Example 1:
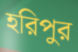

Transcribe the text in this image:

হরিপুর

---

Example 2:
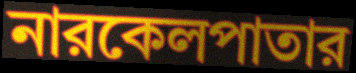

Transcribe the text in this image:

নারকেলপাতার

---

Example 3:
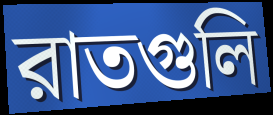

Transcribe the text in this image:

রাতগুলি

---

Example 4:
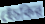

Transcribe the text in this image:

হেঁচকির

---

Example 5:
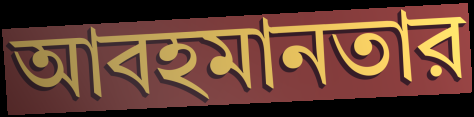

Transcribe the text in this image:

আবহমানতার